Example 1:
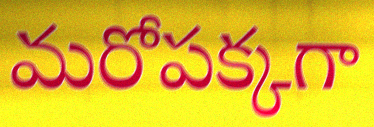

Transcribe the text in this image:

మరోపక్కగా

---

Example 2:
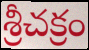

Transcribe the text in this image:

శ్రీచక్రం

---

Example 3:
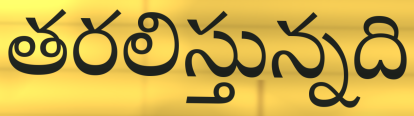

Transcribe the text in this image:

తరలిస్తున్నది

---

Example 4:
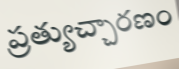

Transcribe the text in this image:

ప్రత్యుచ్చారణం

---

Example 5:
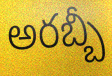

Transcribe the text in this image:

అరబ్బీ